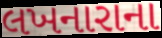
લખનારાના